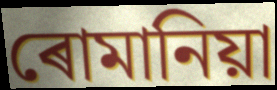
ৰোমানিয়া